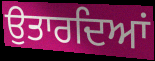
ਉਤਾਰਦਿਆਂ